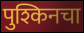
पुश्किनचा